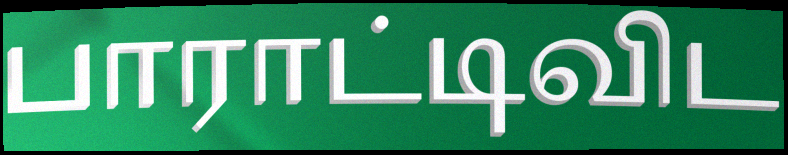
பாராட்டிவிட